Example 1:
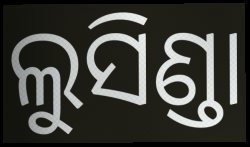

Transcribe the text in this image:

ଲୁସିଣ୍ଡା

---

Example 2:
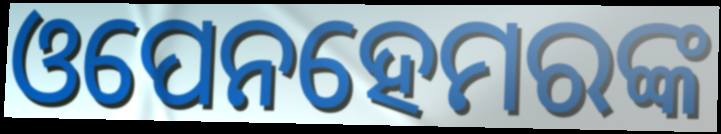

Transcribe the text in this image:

ଓପେନହେମରଙ୍କ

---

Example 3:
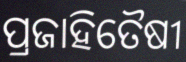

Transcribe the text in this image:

ପ୍ରଜାହିତୈଷୀ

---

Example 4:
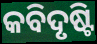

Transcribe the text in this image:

କବିଦୃଷ୍ଟି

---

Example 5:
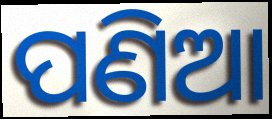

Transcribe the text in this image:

ପଣିଆ